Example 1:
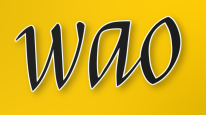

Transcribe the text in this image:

wao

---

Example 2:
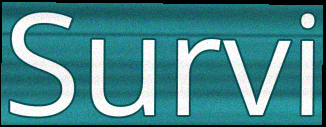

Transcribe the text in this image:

Survi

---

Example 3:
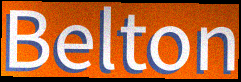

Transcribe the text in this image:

Belton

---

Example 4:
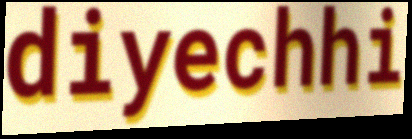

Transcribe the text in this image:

diyechhi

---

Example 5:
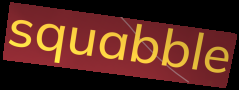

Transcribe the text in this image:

squabble